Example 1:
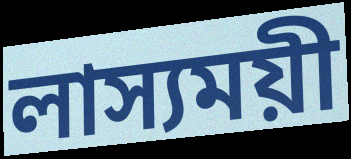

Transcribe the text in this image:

লাস্যময়ী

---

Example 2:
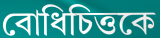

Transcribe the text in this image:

বোধিচিত্তকে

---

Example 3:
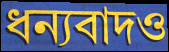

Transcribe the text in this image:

ধন্যবাদও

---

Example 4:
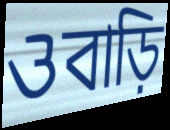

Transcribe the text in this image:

ওবাড়ি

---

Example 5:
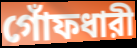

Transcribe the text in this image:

গোঁফধারী